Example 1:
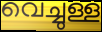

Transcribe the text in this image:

വെച്ചുള്ള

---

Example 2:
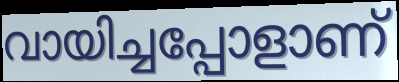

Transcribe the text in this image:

വായിച്ചപ്പോളാണ്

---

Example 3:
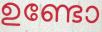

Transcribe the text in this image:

ഉണ്ടോ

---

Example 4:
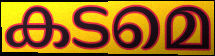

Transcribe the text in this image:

കടമെ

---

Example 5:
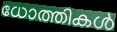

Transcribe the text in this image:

ധോത്തികൾ